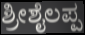
ಶ್ರೀಶೈಲಪ್ಪ